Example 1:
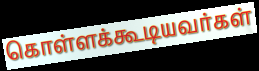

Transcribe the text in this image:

கொள்ளக்கூடியவர்கள்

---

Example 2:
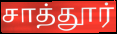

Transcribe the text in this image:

சாத்தூர்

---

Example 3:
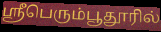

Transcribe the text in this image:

ஸ்ரீபெரும்பூதூரில்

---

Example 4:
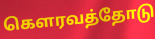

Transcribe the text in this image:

கௌரவத்தோடு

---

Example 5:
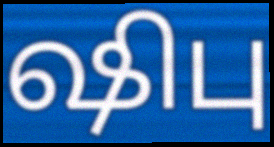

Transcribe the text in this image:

ஷிபு